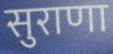
सुराणा